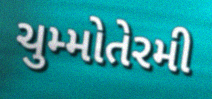
ચુમ્મોતેરમી